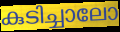
കുടിച്ചാലോ